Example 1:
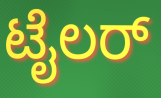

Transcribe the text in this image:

ಟೈಲರ್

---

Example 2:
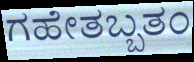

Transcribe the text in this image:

ಗಹೇತಬ್ಬತಂ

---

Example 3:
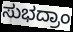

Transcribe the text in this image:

ಸುಭದ್ರಾಂ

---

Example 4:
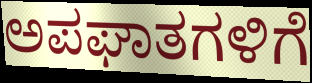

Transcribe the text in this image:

ಅಪಘಾತಗಳಿಗೆ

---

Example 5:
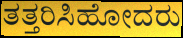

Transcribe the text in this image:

ತತ್ತರಿಸಿಹೋದರು